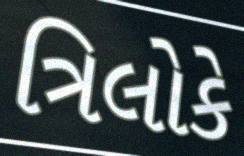
ત્રિલોકે